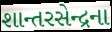
શાન્તરસેન્દ્રના